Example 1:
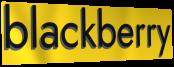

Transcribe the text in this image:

blackberry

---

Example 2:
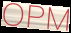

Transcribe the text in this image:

OPM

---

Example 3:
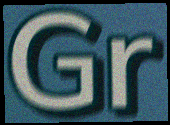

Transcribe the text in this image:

Gr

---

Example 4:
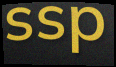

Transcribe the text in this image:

ssp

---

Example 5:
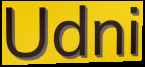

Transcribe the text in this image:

Udni